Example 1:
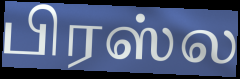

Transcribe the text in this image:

பிரஸ்ல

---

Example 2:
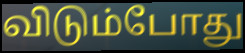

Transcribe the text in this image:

விடும்போது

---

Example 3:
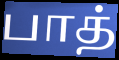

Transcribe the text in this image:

பாத்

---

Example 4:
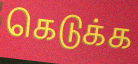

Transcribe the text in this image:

கெடுக்க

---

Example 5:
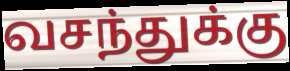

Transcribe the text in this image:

வசந்துக்கு